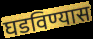
घडविण्यास